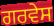
ਗਰਵੇਸ